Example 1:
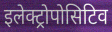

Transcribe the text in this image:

इलेक्ट्रोपोसिटिव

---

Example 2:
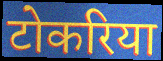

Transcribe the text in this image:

टोकरिया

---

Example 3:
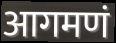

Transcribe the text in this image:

आगमणं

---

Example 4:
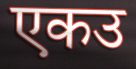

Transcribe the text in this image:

एकउ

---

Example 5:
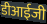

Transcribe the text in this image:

डीआईजी